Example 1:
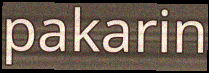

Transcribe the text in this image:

pakarin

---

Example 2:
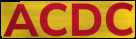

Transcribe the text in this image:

ACDC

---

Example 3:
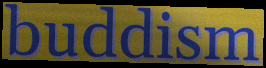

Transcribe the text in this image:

buddism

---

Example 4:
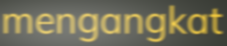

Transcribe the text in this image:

mengangkat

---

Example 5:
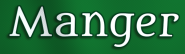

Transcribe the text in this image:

Manger